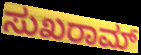
ಸುಖರಾಮ್